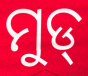
ମୁଡ୍